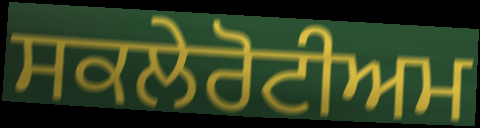
ਸਕਲੇਰੋਟੀਅਮ